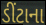
ડીંટાના